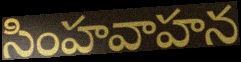
సింహవాహన